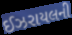
ઈઝરાયલની